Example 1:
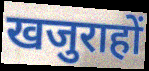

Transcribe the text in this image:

खजुराहों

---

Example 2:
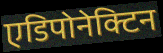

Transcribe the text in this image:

एडिपोनेक्टिन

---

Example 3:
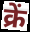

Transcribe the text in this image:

क्रें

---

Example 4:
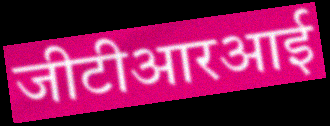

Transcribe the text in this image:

जीटीआरआई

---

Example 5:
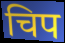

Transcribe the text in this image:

चिप